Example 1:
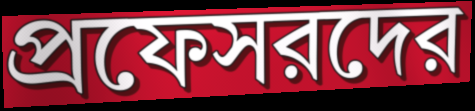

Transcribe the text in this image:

প্রফেসরদের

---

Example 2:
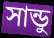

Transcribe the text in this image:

সান্ডু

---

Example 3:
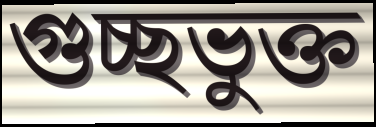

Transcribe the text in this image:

গুচ্ছভুক্ত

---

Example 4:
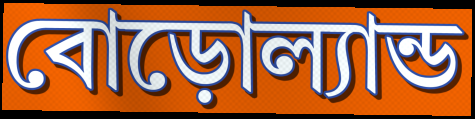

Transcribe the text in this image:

বোড়োল্যান্ড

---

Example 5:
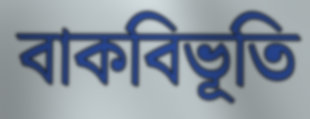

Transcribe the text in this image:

বাকবিভূতি